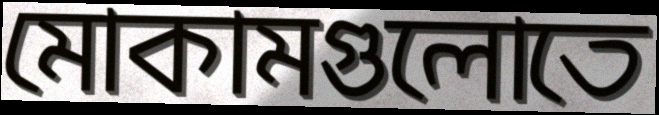
মোকামগুলোতে